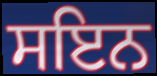
ਸਇਨ